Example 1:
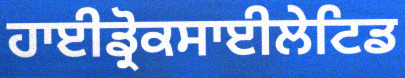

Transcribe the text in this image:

ਹਾਈਡ੍ਰੋਕਸਾਈਲੇਟਿਡ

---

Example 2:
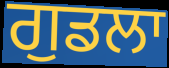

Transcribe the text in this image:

ਗੁਡਲਾ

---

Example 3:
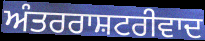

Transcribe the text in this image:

ਅੰਤਰਰਾਸ਼ਟਰੀਵਾਦ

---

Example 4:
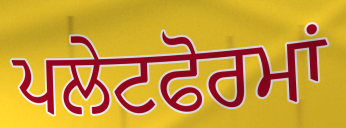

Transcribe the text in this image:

ਪਲੇਟਫੋਰਮਾਂ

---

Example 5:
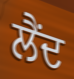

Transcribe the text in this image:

ਲੈਂਦ